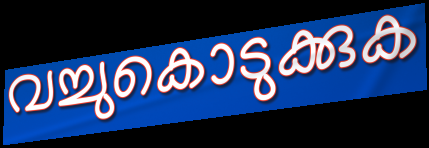
വച്ചുകൊടുക്കുക